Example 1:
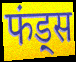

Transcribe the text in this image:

फंड्‌स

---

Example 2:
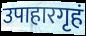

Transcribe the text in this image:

उपाहारगृहं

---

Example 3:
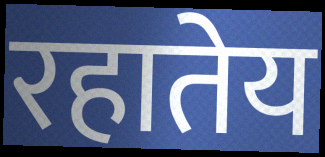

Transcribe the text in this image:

रहातेय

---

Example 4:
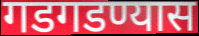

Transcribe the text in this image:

गडगडण्यास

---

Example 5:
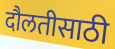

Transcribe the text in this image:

दौलतीसाठी